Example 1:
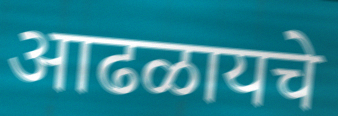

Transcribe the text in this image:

आढळायचे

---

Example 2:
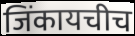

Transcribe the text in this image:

जिंकायचीच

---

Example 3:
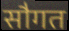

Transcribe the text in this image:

सौगत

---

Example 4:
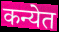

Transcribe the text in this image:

कन्येत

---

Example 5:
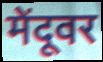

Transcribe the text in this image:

मेंदूवर